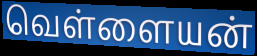
வெள்ளையன்